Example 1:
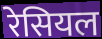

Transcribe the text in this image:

रेसियल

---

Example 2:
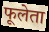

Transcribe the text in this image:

फूलेता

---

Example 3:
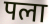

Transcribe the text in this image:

पला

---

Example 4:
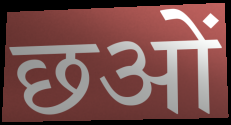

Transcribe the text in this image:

छओं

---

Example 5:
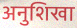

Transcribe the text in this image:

अनुशिखा